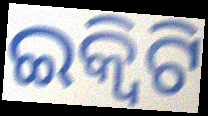
ଇକ୍ବିଟି